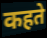
कहते